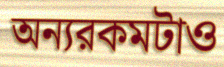
অন্যরকমটাও